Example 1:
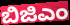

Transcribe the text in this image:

ಬಿಜಿಎಂ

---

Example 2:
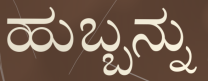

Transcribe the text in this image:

ಹುಬ್ಬನ್ನು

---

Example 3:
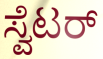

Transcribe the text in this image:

ಸ್ವೆಟರ್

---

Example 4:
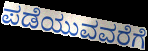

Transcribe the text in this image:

ಪಡೆಯುವವರೆಗೆ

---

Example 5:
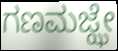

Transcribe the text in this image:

ಗಣಮಜ್ಝೇ